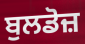
ਬੁਲਡੋਜ਼